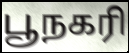
பூநகரி